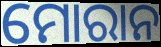
ମୋରାନ